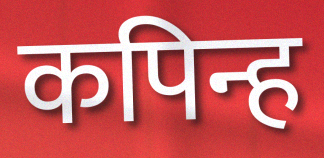
कपिन्ह